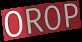
OROP